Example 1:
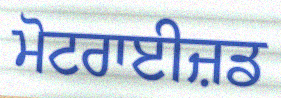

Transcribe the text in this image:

ਮੋਟਰਾਈਜ਼ਡ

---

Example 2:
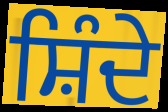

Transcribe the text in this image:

ਸ਼ਿੰਦੇ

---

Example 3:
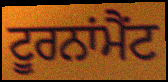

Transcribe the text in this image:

ਟੂਰਨਾਂਮੈਂਟ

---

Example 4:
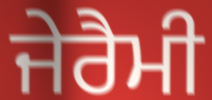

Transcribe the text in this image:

ਜੇਰੈਮੀ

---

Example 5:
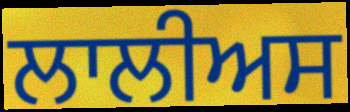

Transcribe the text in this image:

ਲਾਲੀਅਸ